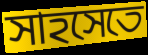
সাহসেতে